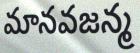
మానవజన్మ